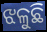
ଝଳୁଛି